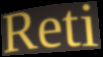
Reti